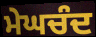
ਮੇਘਚੰਦ